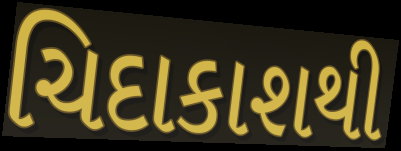
ચિદાકાશથી